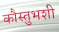
कौस्तुभशी